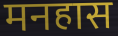
मनहास